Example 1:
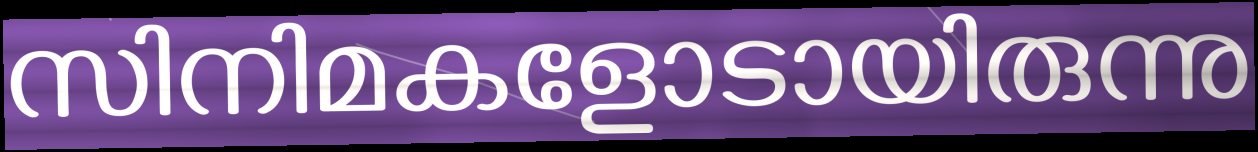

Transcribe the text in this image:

സിനിമകളോടായിരുന്നു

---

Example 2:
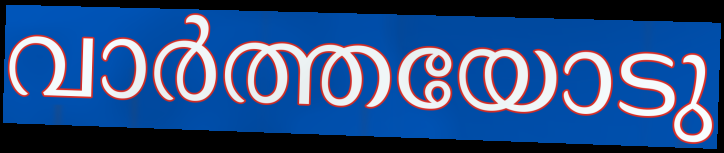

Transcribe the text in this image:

വാർത്തയോടു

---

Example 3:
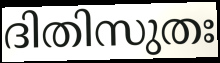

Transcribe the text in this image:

ദിതിസുതഃ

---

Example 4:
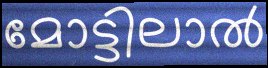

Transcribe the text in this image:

മോട്ടിലാൽ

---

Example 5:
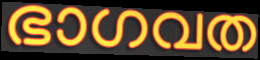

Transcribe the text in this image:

ഭാഗവത